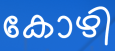
കോഴി